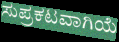
ಸುಪ್ರಕಟವಾಗಿಯೆ